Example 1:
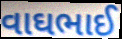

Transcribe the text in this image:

વાઘભાઈ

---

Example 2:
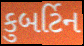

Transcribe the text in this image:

કુબર્ટિન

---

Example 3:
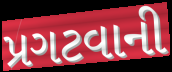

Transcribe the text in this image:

પ્રગટવાની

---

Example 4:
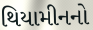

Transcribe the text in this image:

થિયામીનનો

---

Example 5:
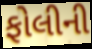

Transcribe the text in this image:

ફોલીની